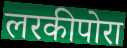
लरकीपोरा